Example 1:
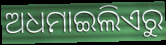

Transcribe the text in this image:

ଅଧମାଇଲିଏରୁ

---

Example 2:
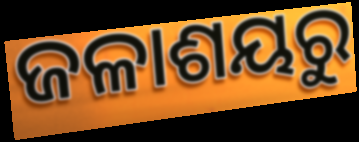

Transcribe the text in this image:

ଜଳାଶୟରୁ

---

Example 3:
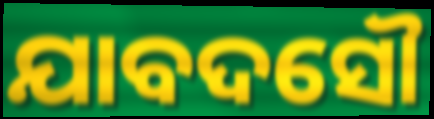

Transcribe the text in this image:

ଯାବଦସୌ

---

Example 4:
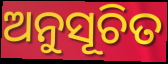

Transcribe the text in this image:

ଅନୁସୂଚିତ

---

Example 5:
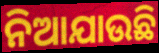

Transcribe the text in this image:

ନିଆଯାଉଛି